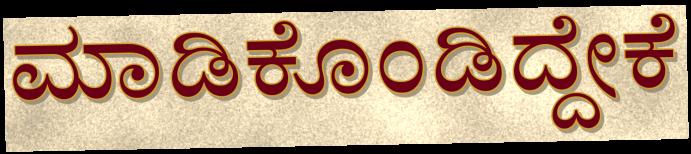
ಮಾಡಿಕೊಂಡಿದ್ದೇಕೆ